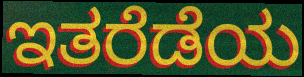
ಇತರೆಡೆಯ